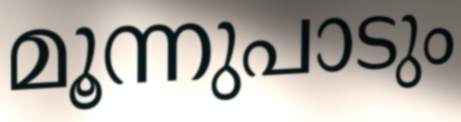
മൂന്നുപാടും